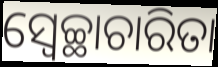
ସ୍ୱେଚ୍ଛାଚାରିତା